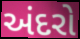
અંદરો